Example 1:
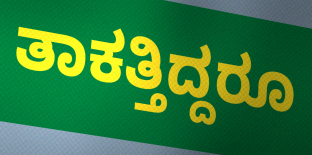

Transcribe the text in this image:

ತಾಕತ್ತಿದ್ದರೂ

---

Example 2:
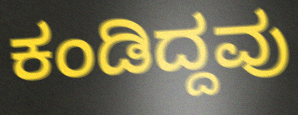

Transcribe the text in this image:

ಕಂಡಿದ್ದವು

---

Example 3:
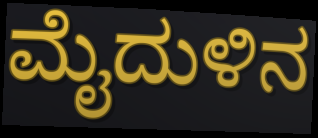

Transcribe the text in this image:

ಮೈದುಳಿನ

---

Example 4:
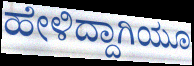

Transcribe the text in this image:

ಹೇಳಿದ್ದಾಗಿಯೂ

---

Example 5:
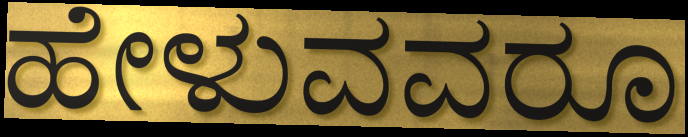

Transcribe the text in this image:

ಹೇಳುವವರೂ